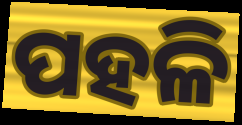
ପହଳି